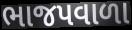
ભાજપવાળા